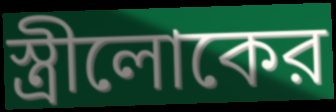
স্ত্রীলোকের